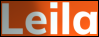
Leila